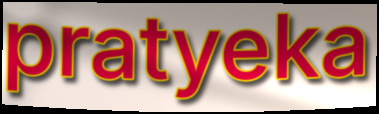
pratyeka